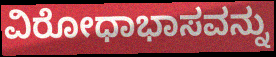
ವಿರೋಧಾಭಾಸವನ್ನು